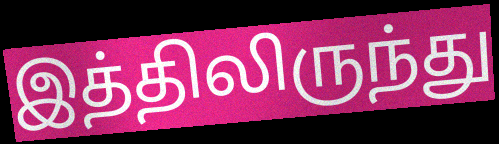
இத்திலிருந்து